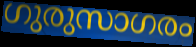
ഗുരുസാഗരം